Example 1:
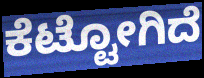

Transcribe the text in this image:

ಕೆಟ್ಟೋಗಿದೆ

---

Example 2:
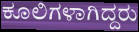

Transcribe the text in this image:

ಕೂಲಿಗಳಾಗಿದ್ದರು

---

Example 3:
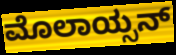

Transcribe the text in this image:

ಮೊಲಾಯ್ಸನ್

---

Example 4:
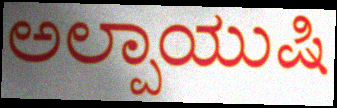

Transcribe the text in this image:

ಅಲ್ಪಾಯುಷಿ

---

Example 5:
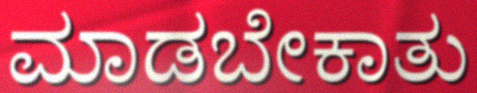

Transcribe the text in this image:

ಮಾಡಬೇಕಾತು